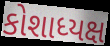
કોશાધ્યક્ષ